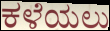
ಕಳೆಯಲು